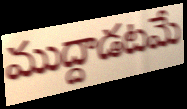
ముద్దాడటమే